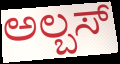
ಅಲ್ಬಸ್